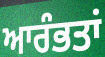
ਆਰੰਭਤਾਂ